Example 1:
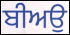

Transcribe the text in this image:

ਬੀਅਉ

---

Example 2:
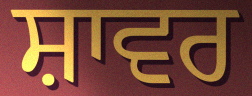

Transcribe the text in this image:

ਸ਼ਾਵਰ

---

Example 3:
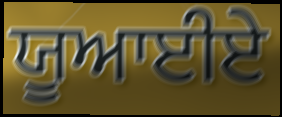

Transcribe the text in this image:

ਯੂਆਈਏ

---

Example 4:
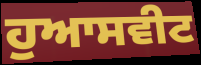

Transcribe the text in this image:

ਹੁਆਸਵੀਟ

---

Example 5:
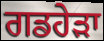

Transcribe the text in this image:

ਗਡਹੇੜਾ